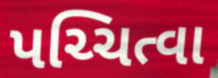
પચ્ચિત્વા